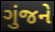
ગુંજને